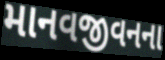
માનવજીવનના